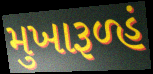
મુખારૂળ્હં